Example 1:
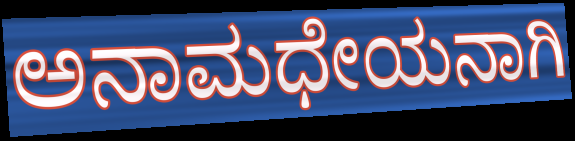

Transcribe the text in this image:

ಅನಾಮಧೇಯನಾಗಿ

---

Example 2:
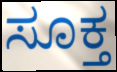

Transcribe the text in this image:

ಸೂಕ್ತ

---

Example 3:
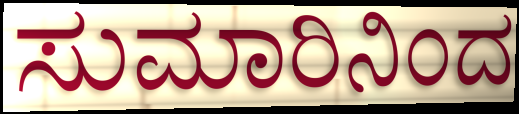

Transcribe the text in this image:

ಸುಮಾರಿನಿಂದ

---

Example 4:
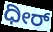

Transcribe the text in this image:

ಧೀರ್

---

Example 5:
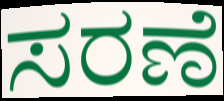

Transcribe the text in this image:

ಸರಣೆ